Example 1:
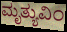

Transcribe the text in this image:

ಮೃತ್ಯುವಿಂ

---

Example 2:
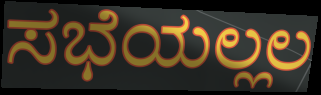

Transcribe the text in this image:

ಸಭೆಯಲ್ಲಲ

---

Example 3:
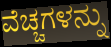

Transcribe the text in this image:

ವೆಚ್ಚಗಳನ್ನು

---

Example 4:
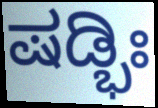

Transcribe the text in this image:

ಷಡ್ಭಿಃ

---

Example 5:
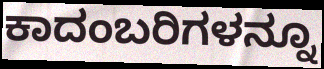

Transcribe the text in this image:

ಕಾದಂಬರಿಗಳನ್ನೂ